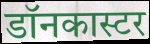
डॉनकास्टर